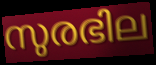
സുരഭില